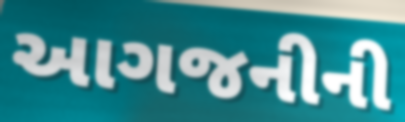
આગજનીની